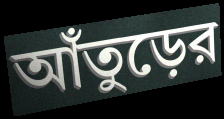
আঁতুড়ের